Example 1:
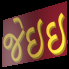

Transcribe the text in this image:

જેઇઇ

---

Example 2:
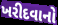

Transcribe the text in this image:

ખરીદવાનો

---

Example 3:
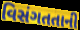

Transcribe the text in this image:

વિસંગતતાની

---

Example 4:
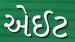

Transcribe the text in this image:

એઈટ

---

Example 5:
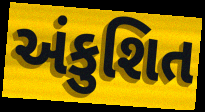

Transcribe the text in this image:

અંકુશિત